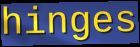
hinges